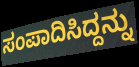
ಸಂಪಾದಿಸಿದ್ದನ್ನು